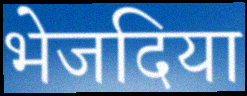
भेजदिया